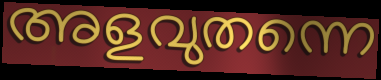
അളവുതന്നെ